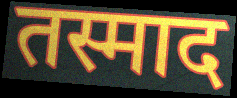
तस्माद